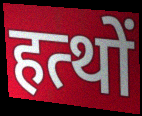
हत्थों